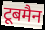
टूबमैन